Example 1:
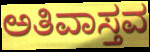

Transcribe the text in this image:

ಅತಿವಾಸ್ತವ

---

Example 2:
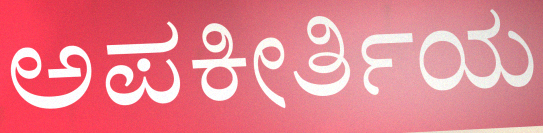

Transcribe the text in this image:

ಅಪಕೀರ್ತಿಯ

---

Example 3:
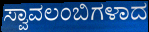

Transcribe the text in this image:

ಸ್ವಾವಲಂಬಿಗಳಾದ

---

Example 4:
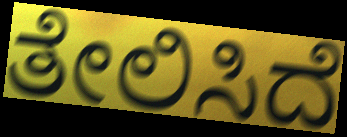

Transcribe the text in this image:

ತೇಲಿಸಿದೆ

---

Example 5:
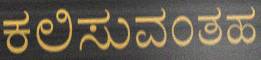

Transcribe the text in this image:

ಕಲಿಸುವಂತಹ